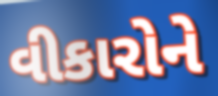
વીકારોને